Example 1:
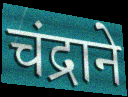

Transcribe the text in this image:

चंद्राने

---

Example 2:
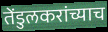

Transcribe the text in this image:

तेंडुलकरांच्याच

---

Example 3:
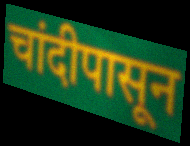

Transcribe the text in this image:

चांदीपासून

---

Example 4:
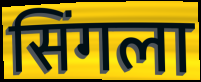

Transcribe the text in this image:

सिंगला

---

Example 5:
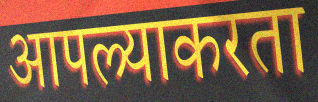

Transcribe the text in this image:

आपल्याकरता